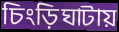
চিংড়িঘাটায়